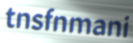
tnsfnmani